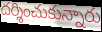
దర్శించుకున్నారు